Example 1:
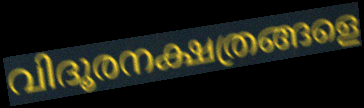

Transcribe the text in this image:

വിദൂരനക്ഷത്രങ്ങളെ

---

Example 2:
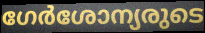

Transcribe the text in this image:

ഗേർശോന്യരുടെ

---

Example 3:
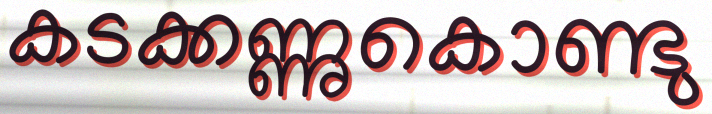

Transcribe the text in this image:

കടക്കണ്ണുകൊണ്ടു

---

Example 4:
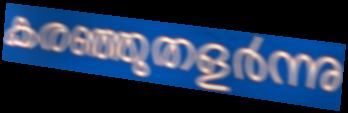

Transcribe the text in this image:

കരഞ്ഞുതളർന്നു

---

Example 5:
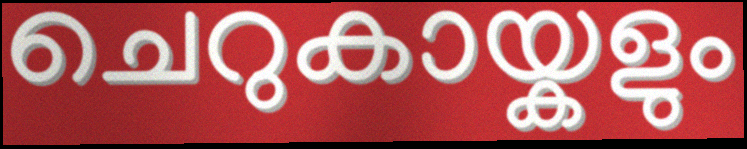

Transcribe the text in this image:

ചെറുകായ്കളും